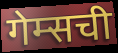
गेम्सची